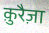
क़ुरैज़ा